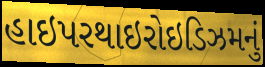
હાઇપરથાઇરોઇડિઝમનું